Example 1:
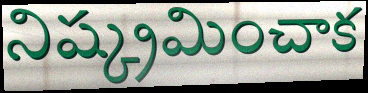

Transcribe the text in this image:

నిష్క్రమించాక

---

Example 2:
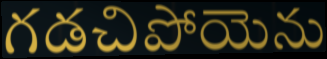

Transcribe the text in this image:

గడచిపోయెను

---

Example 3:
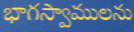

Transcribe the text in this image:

భాగస్వాములను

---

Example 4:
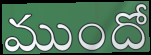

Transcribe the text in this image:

ముందో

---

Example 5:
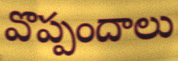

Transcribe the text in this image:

వొప్పందాలు